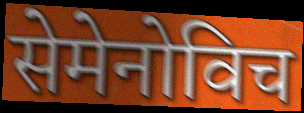
सेमेनोविच